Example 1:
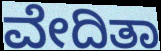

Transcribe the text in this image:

ವೇದಿತಾ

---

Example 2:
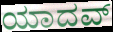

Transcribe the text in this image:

ಯಾದವ್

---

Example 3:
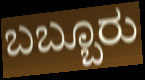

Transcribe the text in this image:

ಬಬ್ಬೂರು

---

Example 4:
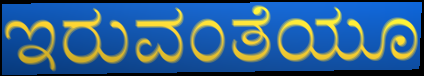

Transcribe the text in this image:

ಇರುವಂತೆಯೂ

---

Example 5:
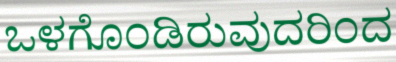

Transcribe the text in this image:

ಒಳಗೊಂಡಿರುವುದರಿಂದ